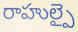
రాహుల్పై